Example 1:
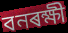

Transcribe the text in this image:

বনৰক্ষী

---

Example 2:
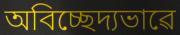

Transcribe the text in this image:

অবিচ্ছেদ্যভাৱে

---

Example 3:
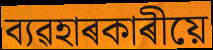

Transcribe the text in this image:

ব্যৱহাৰকাৰীয়ে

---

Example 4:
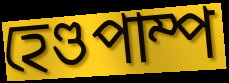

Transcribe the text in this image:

হেণ্ডপাম্প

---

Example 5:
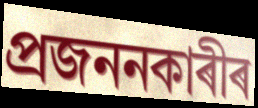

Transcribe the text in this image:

প্ৰজননকাৰীৰ